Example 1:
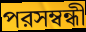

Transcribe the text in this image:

পরসম্বন্ধী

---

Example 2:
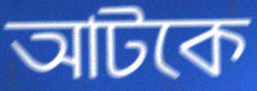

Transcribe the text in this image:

আটকে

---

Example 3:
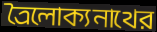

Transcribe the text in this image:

ত্রৈলোক্যনাথের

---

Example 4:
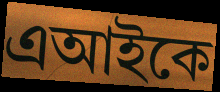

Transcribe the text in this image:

এআইকে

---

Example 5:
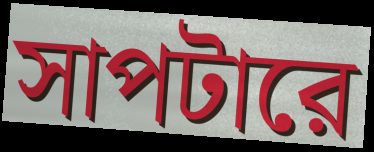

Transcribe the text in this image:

সাপটারে